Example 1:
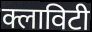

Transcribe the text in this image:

क्लाविटी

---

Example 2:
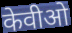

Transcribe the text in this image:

केवीओ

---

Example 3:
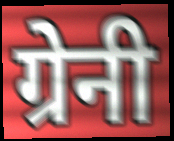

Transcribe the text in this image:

ग्रेनी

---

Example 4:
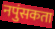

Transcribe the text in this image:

नपुंसकता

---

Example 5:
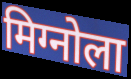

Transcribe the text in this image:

मिग्नोला